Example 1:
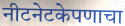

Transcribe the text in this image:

नीटनेटकेपणाचा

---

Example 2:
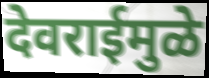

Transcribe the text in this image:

देवराईमुळे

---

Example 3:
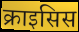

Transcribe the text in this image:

क्राइसिस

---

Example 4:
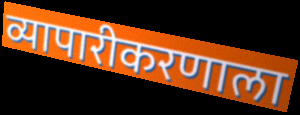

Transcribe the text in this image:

व्यापारीकरणाला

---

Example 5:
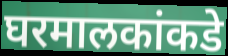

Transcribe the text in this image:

घरमालकांकडे